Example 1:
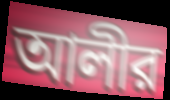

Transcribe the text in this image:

আলীর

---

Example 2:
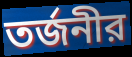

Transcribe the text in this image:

তর্জনীর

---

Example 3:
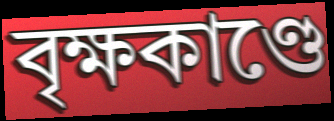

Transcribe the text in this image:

বৃক্ষকাণ্ডে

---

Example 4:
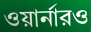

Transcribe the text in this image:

ওয়ার্নারও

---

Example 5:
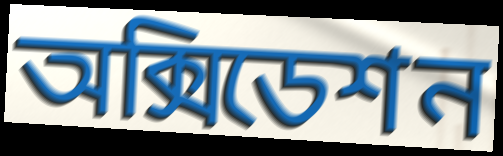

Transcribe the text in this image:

অক্সিডেশন